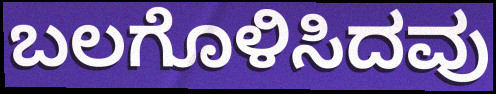
ಬಲಗೊಳಿಸಿದವು